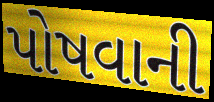
પોષવાની